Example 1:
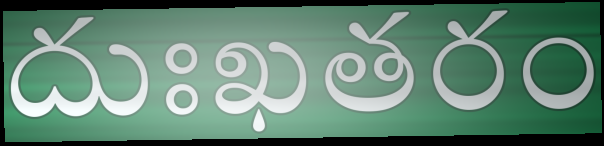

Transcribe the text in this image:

దుఃఖతరం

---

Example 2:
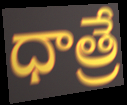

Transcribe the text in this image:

ధాత్రే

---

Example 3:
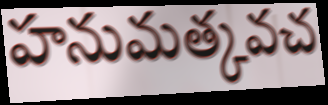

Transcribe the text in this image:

హనుమత్కవచ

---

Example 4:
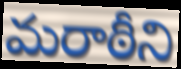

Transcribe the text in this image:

మరాఠీని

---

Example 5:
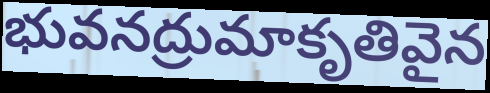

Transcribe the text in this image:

భువనద్రుమాకృతివైన